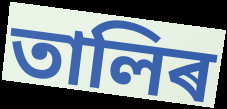
তালিৰ